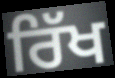
ਰਿੱਖ